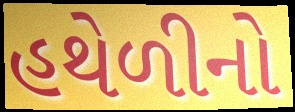
હથેળીનો